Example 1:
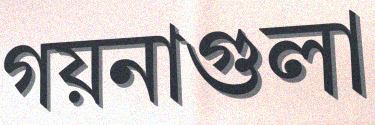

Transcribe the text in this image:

গয়নাগুলা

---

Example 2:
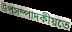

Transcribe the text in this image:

উপসম্পাদকীয়তে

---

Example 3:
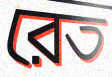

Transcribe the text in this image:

রেত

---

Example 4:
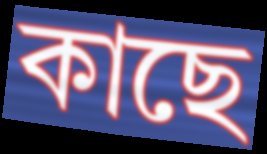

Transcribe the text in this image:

কাছে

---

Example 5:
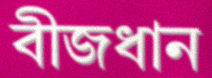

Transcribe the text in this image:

বীজধান